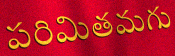
పరిమితమగు